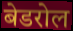
बेडरोल